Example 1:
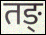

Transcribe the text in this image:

तङ्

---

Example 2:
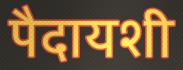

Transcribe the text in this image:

पैदायशी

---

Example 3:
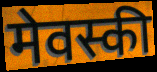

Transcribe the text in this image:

मेवस्की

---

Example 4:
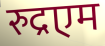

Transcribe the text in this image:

रुद्रएम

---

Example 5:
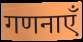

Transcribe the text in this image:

गणनाएँ